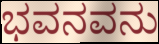
ಭವನವನು